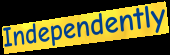
Independently